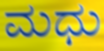
ಮಧು